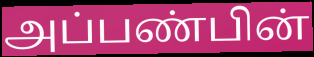
அப்பண்பின்